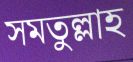
সমতুল্লাহ